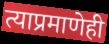
त्याप्रमाणेही